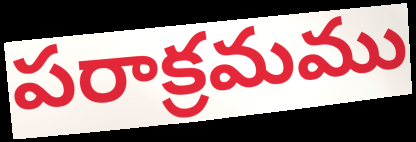
పరాక్రమము